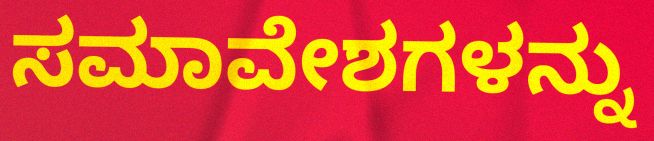
ಸಮಾವೇಶಗಳನ್ನು